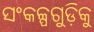
ସଂକଳ୍ପଗୁଡ଼ିକୁ